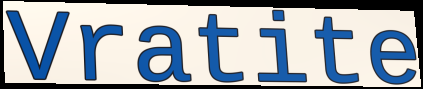
Vratite